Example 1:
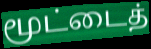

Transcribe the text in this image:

மூட்டைத்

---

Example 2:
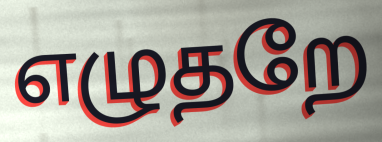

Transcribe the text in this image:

எழுதறே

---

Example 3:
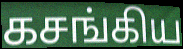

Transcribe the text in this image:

கசங்கிய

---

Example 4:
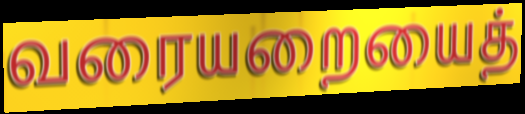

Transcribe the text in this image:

வரையறையைத்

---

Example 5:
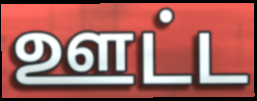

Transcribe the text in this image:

ஊட்ட